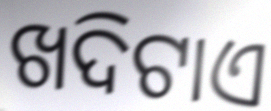
ଖଦିଟାଏ